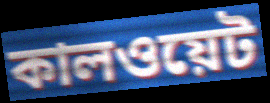
কালওয়েট